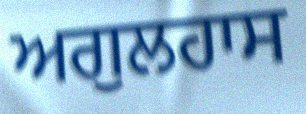
ਅਗੁਲਹਾਸ